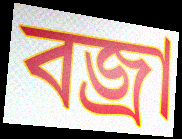
বজ্রা